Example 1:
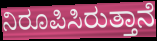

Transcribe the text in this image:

ನಿರೂಪಿಸಿರುತ್ತಾನೆ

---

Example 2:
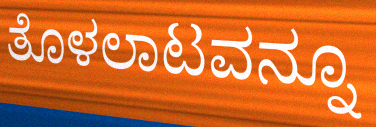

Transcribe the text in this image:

ತೊಳಲಾಟವನ್ನೂ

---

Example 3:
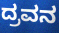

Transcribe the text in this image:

ದ್ರವನ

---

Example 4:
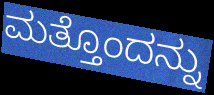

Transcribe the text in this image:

ಮತ್ತೊಂದನ್ನು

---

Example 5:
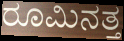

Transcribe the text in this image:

ರೂಮಿನತ್ತ